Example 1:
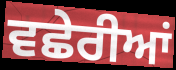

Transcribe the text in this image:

ਵਛੇਰੀਆਂ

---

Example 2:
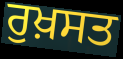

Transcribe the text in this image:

ਰੁਖ਼ਸਤ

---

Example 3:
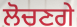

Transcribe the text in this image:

ਲੋਚਣਗੇ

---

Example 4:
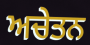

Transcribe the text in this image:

ਅਚੇਤਨ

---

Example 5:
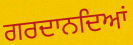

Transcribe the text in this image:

ਗਰਦਾਨਦਿਆਂ